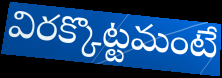
విరక్కొట్టమంటే